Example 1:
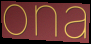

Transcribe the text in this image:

ona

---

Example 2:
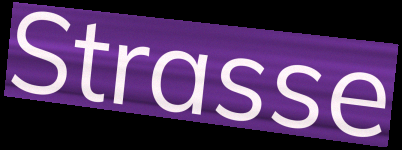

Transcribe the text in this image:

Strasse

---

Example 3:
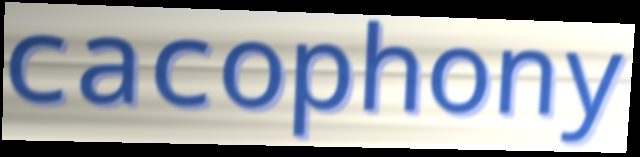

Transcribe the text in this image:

cacophony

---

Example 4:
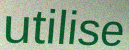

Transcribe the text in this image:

utilise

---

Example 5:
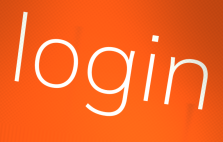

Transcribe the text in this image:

login